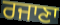
ਰਜਾਣਾ